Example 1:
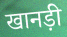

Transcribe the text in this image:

खानड़ी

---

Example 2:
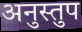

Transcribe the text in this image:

अनुस्तुप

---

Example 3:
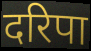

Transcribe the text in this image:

दरिपा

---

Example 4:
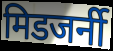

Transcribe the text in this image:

मिडजर्नी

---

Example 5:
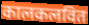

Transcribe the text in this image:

कालकलवित